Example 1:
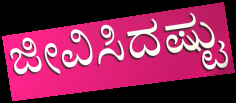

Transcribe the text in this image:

ಜೀವಿಸಿದಷ್ಟು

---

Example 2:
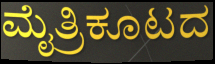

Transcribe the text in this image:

ಮೈತ್ರಿಕೂಟದ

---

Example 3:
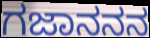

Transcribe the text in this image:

ಗಜಾನನನ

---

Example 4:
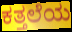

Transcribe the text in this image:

ಕತ್ತಲೆಯ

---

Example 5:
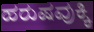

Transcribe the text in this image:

ಹರುಷವುಕ್ಕಿ